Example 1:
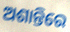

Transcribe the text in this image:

ଅଶାନ୍ତିରେ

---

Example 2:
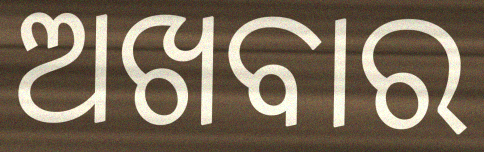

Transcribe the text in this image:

ଅଖବାର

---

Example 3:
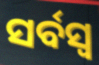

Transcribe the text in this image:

ସର୍ବସ୍ୱ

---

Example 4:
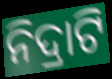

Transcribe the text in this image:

ନିଦ୍ରାଟି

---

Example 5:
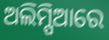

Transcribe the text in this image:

ଅଲିମ୍ପିଆରେ